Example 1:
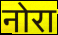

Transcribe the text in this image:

नोरा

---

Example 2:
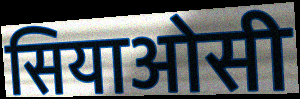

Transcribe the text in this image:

सियाओसी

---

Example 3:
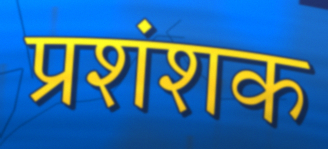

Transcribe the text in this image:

प्रशंशक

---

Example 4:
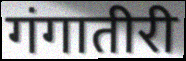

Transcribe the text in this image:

गंगातीरी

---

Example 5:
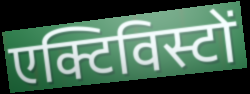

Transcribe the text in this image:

एक्टिविस्टों